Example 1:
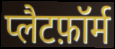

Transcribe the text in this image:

प्लैटफ़ॉर्म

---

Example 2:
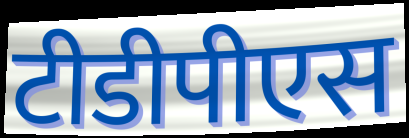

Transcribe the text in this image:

टीडीपीएस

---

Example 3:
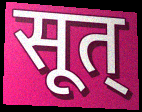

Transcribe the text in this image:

सूत्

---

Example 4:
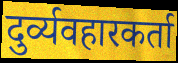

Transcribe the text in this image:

दुर्व्यवहारकर्ता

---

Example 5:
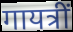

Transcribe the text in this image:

गायत्रीं